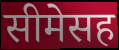
सीमेसह